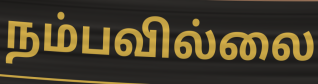
நம்பவில்லை